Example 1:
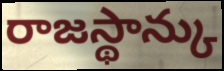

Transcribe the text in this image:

రాజస్థాన్కు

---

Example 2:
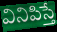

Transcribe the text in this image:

వినిపిస్తే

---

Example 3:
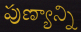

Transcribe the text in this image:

పుణ్యాన్ని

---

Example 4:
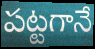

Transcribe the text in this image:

పట్టగానే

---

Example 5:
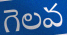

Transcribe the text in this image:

గెలవ